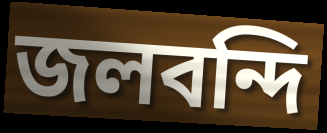
জলবন্দি